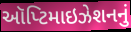
ઑપ્ટિમાઇઝેશનનું